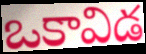
ఒకావిడ